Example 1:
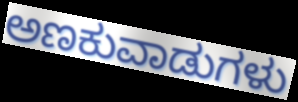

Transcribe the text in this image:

ಅಣಕುವಾಡುಗಳು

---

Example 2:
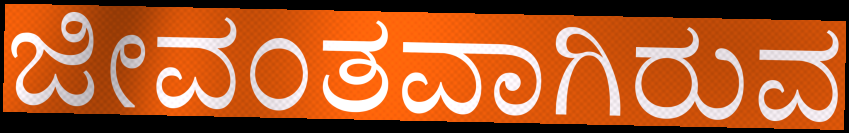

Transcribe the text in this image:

ಜೀವಂತವಾಗಿರುವ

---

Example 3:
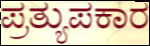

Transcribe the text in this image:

ಪ್ರತ್ಯುಪಕಾರ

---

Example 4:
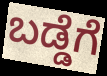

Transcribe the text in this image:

ಬಡ್ಡೆಗೆ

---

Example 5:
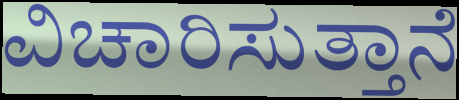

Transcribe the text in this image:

ವಿಚಾರಿಸುತ್ತಾನೆ